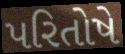
પરિતોષે